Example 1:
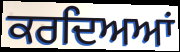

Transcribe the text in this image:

ਕਰਦਿਅਆਂ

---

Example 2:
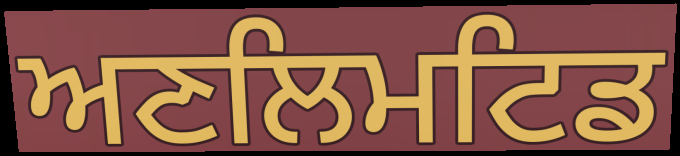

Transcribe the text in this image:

ਅਣਲਿਮਟਿਡ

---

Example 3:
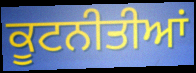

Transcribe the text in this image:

ਕੂਟਨੀਤੀਆਂ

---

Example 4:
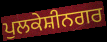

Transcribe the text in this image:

ਪੁਲਕੇਸ਼ੀਨਗਰ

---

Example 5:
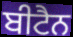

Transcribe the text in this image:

ਬੀਟੈਨ